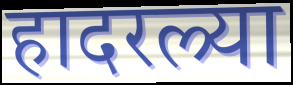
हादरल्या